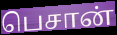
பெசான்